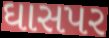
ઘાસપર